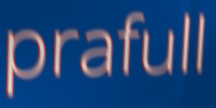
prafull